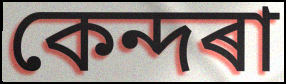
কেন্দৰা